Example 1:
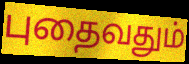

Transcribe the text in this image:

புதைவதும்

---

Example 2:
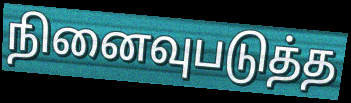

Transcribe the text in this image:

நினைவுபடுத்த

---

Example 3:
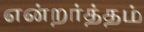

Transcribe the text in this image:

என்றர்த்தம்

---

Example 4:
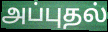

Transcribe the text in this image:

அப்புதல்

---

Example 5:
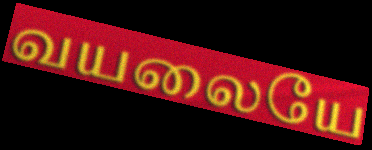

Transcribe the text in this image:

வயலையே